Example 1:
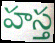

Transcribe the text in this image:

హస్త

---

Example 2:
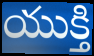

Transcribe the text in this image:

యుక్తి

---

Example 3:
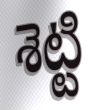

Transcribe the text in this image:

శెట్టి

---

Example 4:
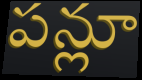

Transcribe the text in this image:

పన్లూ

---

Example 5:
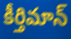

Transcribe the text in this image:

కీర్తిమాన్